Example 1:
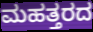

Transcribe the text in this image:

ಮಹತ್ತರದ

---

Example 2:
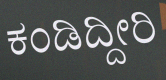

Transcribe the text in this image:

ಕಂಡಿದ್ದೀರಿ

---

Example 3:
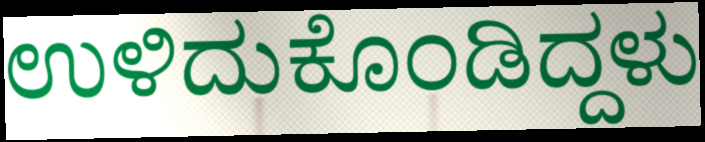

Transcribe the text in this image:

ಉಳಿದುಕೊಂಡಿದ್ದಳು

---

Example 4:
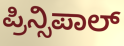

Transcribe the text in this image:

ಪ್ರಿನ್ಸಿಪಾಲ್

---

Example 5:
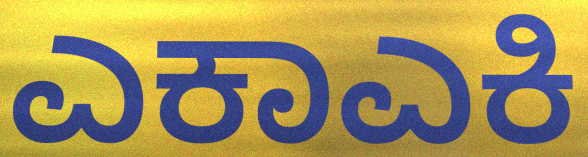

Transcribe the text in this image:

ಎಕಾಎಕಿ